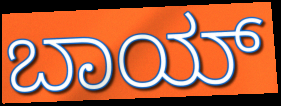
ಬಾಯ್